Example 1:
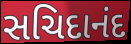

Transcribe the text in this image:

સચિદાનંદ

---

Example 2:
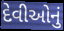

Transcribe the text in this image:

દેવીઓનું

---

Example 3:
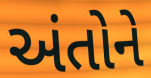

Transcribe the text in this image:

અંતોને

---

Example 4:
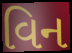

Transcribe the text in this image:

વિન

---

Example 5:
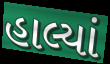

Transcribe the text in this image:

હાલ્યાં